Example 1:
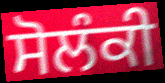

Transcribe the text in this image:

ਸੋਲੰਕੀ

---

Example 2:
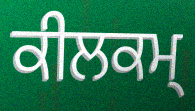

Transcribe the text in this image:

ਕੀਲਕਮ੍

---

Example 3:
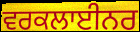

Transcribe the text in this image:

ਵਰਕਲਾਈਨਰ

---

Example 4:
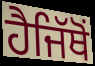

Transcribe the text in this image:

ਹੈਜਿੱਥੋਂ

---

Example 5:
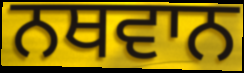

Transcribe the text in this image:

ਨਥਵਾਨ